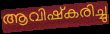
ആവിഷ്കരിച്ചു